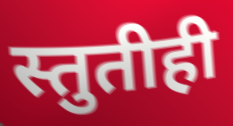
स्तुतीही